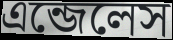
এন্জেলেস